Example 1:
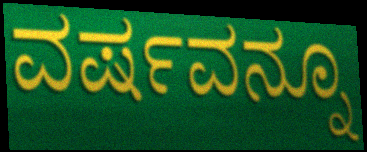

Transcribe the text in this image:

ವರ್ಷವನ್ನೂ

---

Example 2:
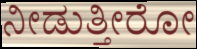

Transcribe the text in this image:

ನೀಡುತ್ತೀರೋ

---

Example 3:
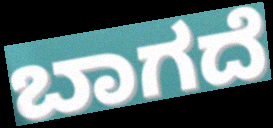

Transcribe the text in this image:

ಬಾಗದೆ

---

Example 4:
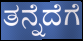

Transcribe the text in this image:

ತನ್ನೆದೆಗೆ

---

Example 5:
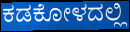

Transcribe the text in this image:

ಕಡಕೋಳದಲ್ಲಿ